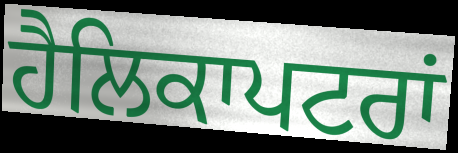
ਹੈਲਿਕਾਪਟਰਾਂ